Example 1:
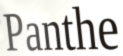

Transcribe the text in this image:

Panthe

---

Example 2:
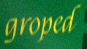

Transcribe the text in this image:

groped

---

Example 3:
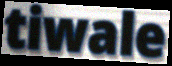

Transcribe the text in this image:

tiwale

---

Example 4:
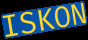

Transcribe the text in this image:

ISKON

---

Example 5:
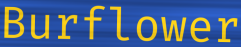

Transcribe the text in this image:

Burflower